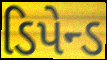
ડિપેન્ડ